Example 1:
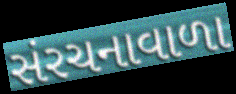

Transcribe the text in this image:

સંરચનાવાળા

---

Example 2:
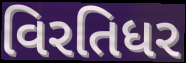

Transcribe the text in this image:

વિરતિધર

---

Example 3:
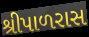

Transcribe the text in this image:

શ્રીપાળરાસ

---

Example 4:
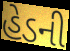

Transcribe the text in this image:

હેડની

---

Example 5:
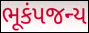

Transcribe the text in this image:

ભૂકંપજન્ય